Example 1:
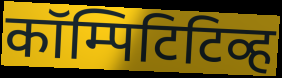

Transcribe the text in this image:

कॉम्पिटिटिव्ह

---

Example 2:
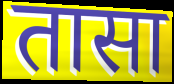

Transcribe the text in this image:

तासा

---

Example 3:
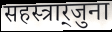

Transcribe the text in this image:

सहस्त्रार्जुना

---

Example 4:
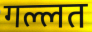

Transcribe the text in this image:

गल्लत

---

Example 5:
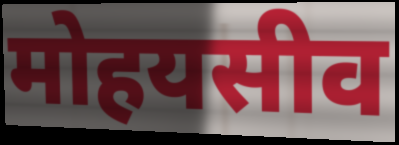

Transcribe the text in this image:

मोहयसीव